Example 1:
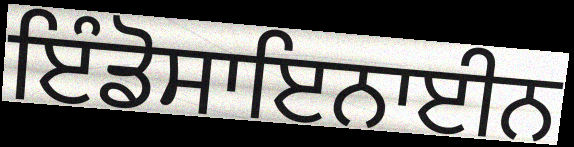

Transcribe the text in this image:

ਇੰਡੋਸਾਇਨਾਈਨ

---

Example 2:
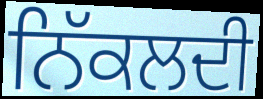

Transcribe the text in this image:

ਨਿੱਕਲਦੀ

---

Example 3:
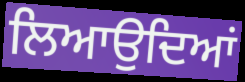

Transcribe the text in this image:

ਲਿਆਉਦਿਆਂ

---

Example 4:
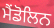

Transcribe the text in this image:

ਮੈਂਡੋਲਿਨ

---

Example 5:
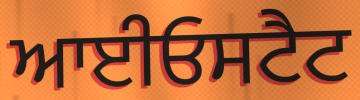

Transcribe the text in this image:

ਆਈਓਸਟੈਟ